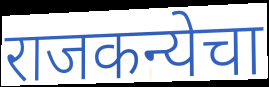
राजकन्येचा